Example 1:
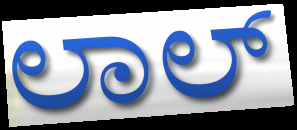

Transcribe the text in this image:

ಲಾಲ್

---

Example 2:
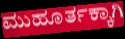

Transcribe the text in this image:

ಮುಹೂರ್ತಕ್ಕಾಗಿ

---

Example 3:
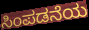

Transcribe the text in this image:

ಸಿಂಪಡನೆಯ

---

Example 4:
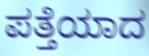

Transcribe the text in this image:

ಪತ್ತೆಯಾದ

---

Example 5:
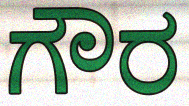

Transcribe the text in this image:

ಗೌರ